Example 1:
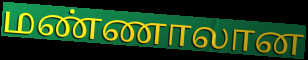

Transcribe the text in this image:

மண்ணாலான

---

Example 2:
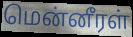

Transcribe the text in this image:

மென்னீரள்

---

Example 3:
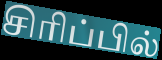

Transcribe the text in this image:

சிரிப்பில்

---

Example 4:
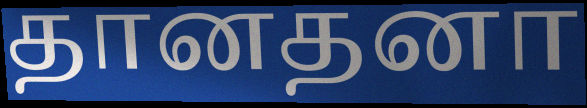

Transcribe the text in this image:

தானதனா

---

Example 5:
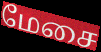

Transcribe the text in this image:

மேசை